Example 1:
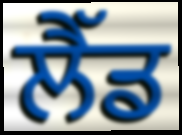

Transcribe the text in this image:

ਲੈੱਡ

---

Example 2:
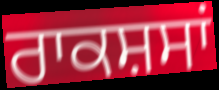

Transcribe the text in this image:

ਰਾਕਸ਼ਸਾਂ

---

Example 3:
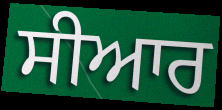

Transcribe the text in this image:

ਸੀਆਰ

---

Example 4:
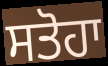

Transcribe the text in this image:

ਸਤੋਹਾ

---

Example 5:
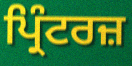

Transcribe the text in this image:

ਪ੍ਰਿੰਟਰਜ਼